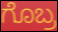
ಗೊಬ್ರ